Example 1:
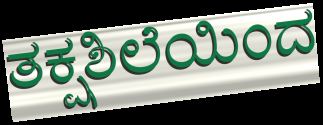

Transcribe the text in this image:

ತಕ್ಷಶಿಲೆಯಿಂದ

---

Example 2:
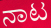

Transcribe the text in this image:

ನಾಟ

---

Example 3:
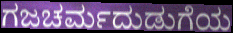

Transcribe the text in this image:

ಗಜಚರ್ಮದುಡುಗೆಯ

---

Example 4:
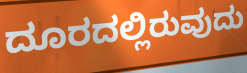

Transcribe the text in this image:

ದೂರದಲ್ಲಿರುವುದು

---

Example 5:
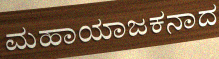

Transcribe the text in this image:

ಮಹಾಯಾಜಕನಾದ